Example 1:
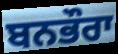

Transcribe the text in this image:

ਬਨਭੌਰਾ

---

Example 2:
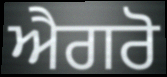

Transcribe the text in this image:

ਐਗਰੋ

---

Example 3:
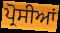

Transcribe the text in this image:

ਪ੍ਰੋਸੀਆਂ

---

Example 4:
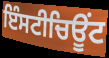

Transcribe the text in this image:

ਇੰਸਟੀਚਿਊਂਟ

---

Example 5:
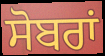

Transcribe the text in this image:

ਸੋਬਰਾਂ